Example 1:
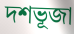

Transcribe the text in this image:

দশভূজা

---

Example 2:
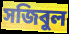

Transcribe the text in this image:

সজিবুল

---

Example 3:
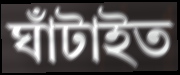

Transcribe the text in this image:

ঘাঁটাইত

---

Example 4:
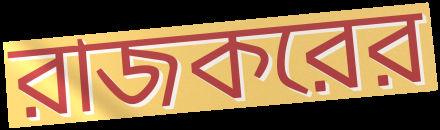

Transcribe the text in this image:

রাজকরের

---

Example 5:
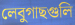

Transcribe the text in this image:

লেবুগাছগুলি